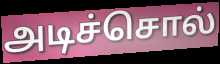
அடிச்சொல்